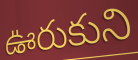
ఊరుకుని